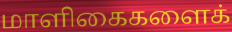
மாளிகைகளைக்